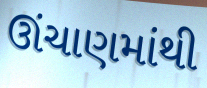
ઊંચાણમાંથી